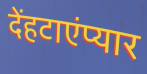
देंहटाएंप्यार